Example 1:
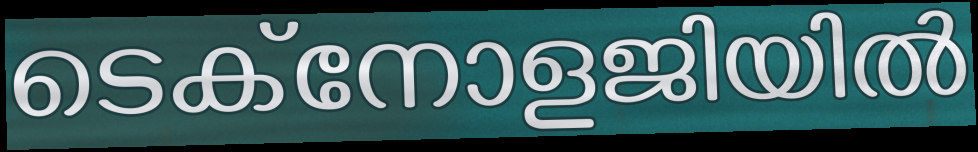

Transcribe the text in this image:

ടെക്‌നോളജിയിൽ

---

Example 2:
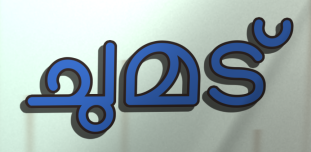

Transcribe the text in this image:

ചുമട്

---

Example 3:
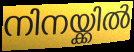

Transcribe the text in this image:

നിനയ്ക്കിൽ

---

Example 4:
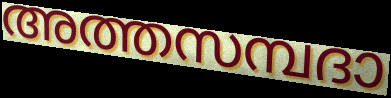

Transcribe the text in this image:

അത്തസമ്പദാ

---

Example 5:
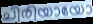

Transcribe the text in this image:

ചിരിയായോ